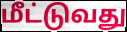
மீட்டுவது